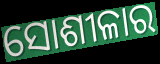
ସୋଶୀଳାର